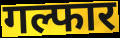
गल्फार